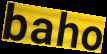
baho